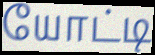
யோட்டி